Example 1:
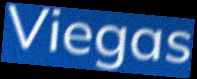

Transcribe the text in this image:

Viegas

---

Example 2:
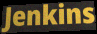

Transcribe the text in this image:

Jenkins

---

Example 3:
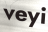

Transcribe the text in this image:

veyi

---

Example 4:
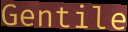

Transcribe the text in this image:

Gentile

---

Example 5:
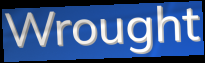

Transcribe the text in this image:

Wrought